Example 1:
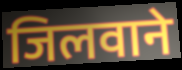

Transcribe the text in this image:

जिलवाने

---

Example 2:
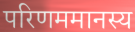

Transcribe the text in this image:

परिणममानस्य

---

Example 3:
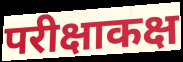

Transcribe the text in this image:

परीक्षाकक्ष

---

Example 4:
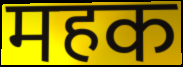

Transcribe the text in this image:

महक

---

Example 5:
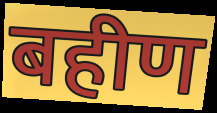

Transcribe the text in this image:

बहीण